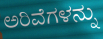
ಅರಿವೆಗಳನ್ನು